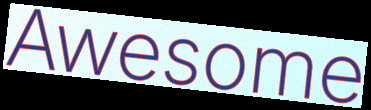
Awesome